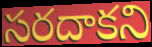
సరదాకని